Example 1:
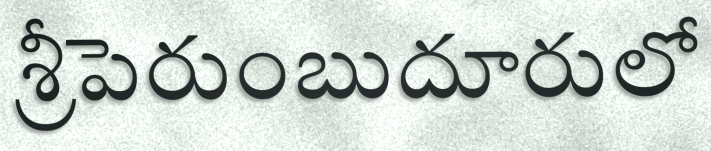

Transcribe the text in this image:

శ్రీపెరుంబుదూరులో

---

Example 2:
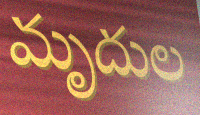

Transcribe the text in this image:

మృదుల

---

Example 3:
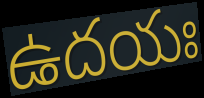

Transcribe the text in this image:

ఉదయః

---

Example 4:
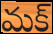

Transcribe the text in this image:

మక్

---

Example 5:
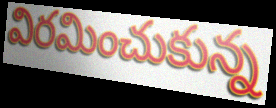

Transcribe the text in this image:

విరమించుకున్న